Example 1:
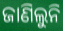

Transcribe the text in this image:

ଜାଣିଲୁନି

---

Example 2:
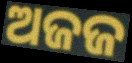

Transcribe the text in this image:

ଅଜଜ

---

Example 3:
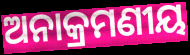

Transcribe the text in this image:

ଅନାକ୍ରମଣୀୟ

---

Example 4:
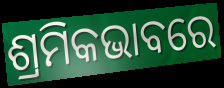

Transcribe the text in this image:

ଶ୍ରମିକଭାବରେ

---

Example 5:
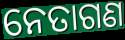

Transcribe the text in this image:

ନେତାଗଣ